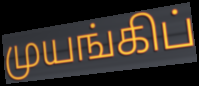
முயங்கிப்